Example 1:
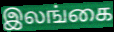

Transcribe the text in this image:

இலங்கை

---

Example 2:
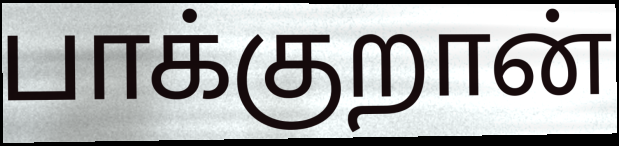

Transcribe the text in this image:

பாக்குறான்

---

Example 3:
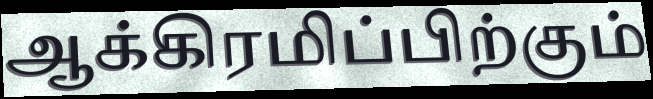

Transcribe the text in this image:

ஆக்கிரமிப்பிற்கும்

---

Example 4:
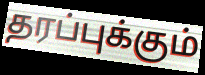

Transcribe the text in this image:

தரப்புக்கும்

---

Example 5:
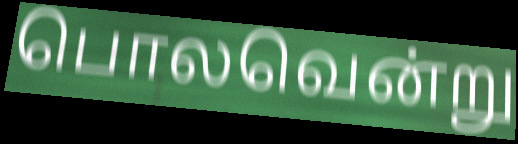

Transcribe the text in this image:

பொலவென்று